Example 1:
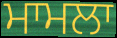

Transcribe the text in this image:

ਮਾਮਲਾ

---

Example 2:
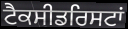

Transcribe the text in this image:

ਟੈਕਸੀਡਰਿਸਟਾਂ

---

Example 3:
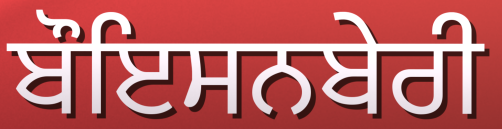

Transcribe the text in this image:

ਬੌਇਸਨਬੇਰੀ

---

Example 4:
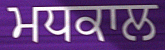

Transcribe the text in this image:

ਮਧਕਾਲ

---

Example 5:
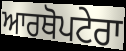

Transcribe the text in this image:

ਆਰਥੋਪਟੇਰਾ